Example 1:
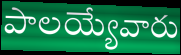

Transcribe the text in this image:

పాలయ్యేవారు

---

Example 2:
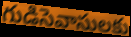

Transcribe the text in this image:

గుడిసెవాసులకు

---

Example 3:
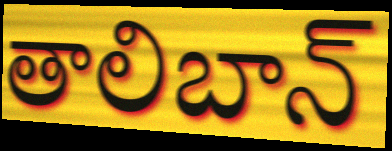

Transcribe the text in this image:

తాలిబాన్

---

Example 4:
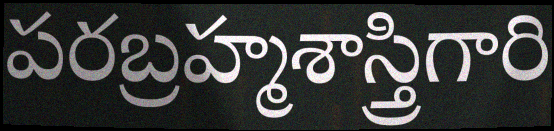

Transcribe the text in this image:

పరబ్రహ్మశాస్త్రిగారి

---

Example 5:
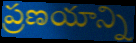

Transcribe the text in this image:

ప్రణయాన్ని